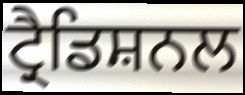
ਟ੍ਰੈਡਿਸ਼ਨਲ